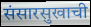
संसारसुखाची